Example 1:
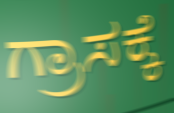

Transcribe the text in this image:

ಗ್ರಾಸಕ್ಕೆ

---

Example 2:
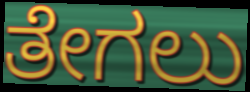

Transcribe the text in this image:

ತೇಗಲು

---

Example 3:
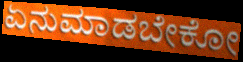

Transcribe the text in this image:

ಏನುಮಾಡಬೇಕೋ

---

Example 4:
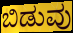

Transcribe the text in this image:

ಬಿಡುವು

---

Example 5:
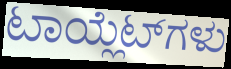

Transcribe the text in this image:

ಟಾಯ್ಲೆಟ್‌ಗಳು